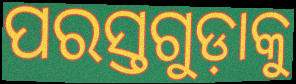
ପରସ୍ତଗୁଡ଼ାକୁ